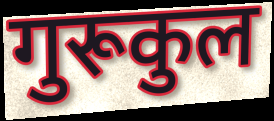
गुरूकुल